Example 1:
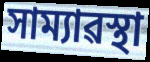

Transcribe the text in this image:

সাম্যাৱস্থা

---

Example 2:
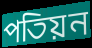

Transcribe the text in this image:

পতিয়ন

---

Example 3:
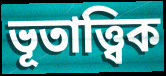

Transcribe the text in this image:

ভূতাত্ত্বিক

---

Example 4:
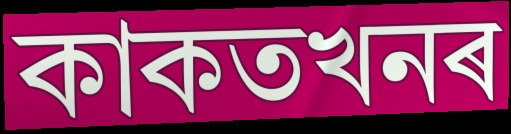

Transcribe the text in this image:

কাকতখনৰ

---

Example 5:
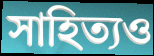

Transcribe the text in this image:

সাহিত্য়ও